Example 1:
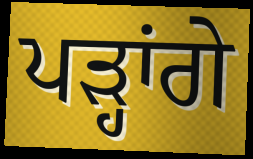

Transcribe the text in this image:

ਪੜ੍ਹਾਂਗੇ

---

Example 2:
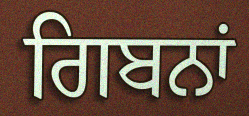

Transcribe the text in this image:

ਗਿਬਨਾਂ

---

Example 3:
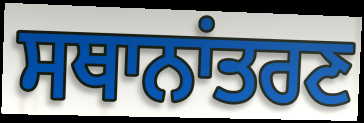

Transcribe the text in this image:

ਸਥਾਨਾਂਤਰਣ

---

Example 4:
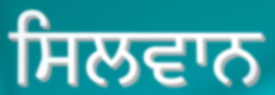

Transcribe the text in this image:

ਸਿਲਵਾਨ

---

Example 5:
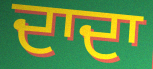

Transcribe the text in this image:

ਦਾਦਾ